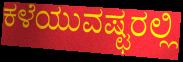
ಕಳೆಯುವಷ್ಟರಲ್ಲಿ